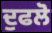
ਦੁਫਲੋ